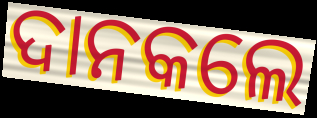
ଦାନକଲେ